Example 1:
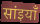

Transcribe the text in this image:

सांइयाँ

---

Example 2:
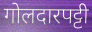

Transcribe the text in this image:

गोलदारपट्टी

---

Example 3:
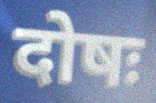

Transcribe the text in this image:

दोषः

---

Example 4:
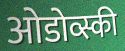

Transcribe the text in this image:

ओडोव्स्की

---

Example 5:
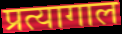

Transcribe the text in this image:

प्रत्यागाल